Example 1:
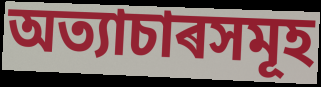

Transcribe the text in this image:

অত্যাচাৰসমূহ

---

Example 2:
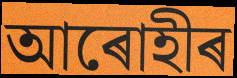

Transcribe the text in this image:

আৰোহীৰ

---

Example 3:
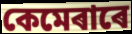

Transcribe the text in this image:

কেমেৰাৰে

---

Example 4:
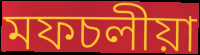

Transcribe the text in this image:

মফচলীয়া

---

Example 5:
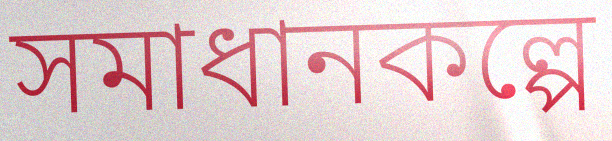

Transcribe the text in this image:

সমাধানকল্পে